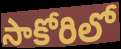
సాకోరిలో